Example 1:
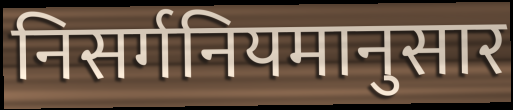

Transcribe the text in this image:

निसर्गनियमानुसार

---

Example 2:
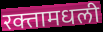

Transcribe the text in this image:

रक्तामधली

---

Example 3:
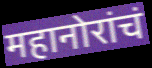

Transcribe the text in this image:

महानोरांचं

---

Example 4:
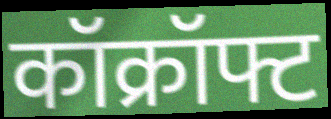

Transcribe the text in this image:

कॉक्रॉफ्ट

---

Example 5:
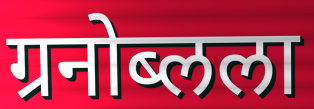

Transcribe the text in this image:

ग्रनोब्लला